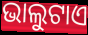
ଭାଲୁଟାଏ